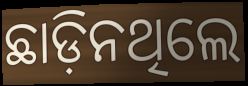
ଛାଡ଼ିନଥିଲେ